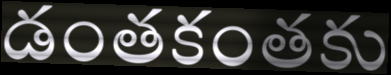
డంతకంతకు